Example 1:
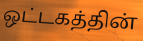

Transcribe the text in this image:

ஒட்டகத்தின்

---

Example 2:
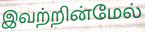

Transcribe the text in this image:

இவற்றின்மேல்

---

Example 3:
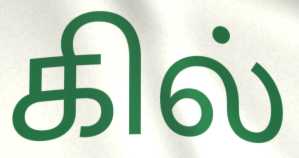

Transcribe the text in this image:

கில்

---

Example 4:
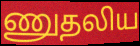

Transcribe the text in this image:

ணுதலிய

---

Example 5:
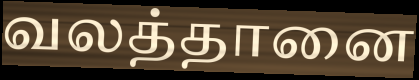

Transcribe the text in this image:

வலத்தானை